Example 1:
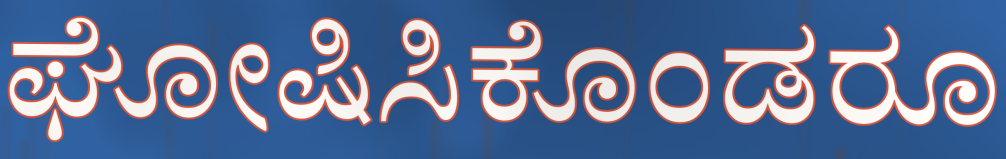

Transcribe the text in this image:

ಘೋಷಿಸಿಕೊಂಡರೂ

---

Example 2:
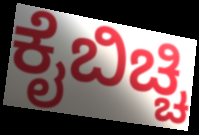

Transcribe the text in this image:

ಕೈಬಿಚ್ಚಿ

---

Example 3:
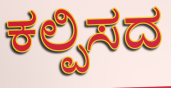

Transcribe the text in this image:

ಕಲ್ಪಿಸದ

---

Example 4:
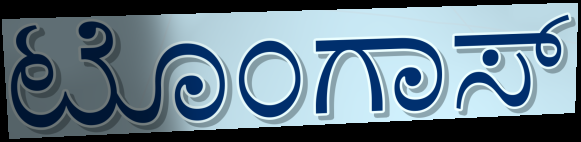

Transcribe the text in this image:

ಟೊಂಗಾಸ್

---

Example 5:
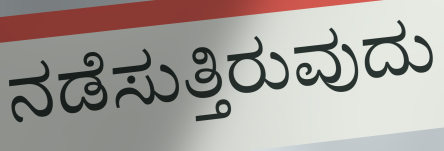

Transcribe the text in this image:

ನಡೆಸುತ್ತಿರುವುದು